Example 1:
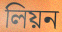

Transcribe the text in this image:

লিয়ন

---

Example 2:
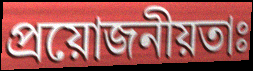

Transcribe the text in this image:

প্ৰয়োজনীয়তাঃ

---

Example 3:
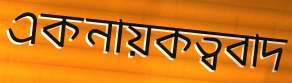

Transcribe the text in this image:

একনায়কত্ববাদ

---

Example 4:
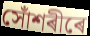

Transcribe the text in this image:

সোঁশৰীৰে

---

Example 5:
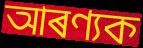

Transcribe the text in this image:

আৰণ্যক